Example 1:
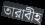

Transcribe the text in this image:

তারাবীহ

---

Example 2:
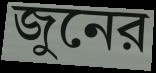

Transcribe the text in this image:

জুনের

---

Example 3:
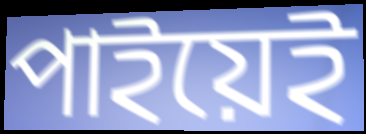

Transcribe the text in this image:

পাইয়েই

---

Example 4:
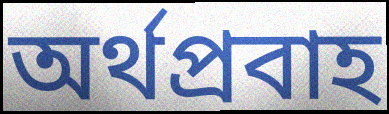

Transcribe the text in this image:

অর্থপ্রবাহ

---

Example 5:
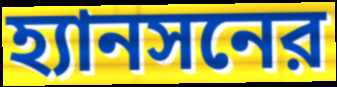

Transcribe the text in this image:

হ্যানসনের